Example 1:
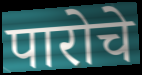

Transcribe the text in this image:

पारोचे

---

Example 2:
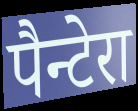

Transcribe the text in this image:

पैन्टेरा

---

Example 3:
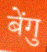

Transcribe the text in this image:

बेंगु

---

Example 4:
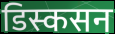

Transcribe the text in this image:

डिस्कसन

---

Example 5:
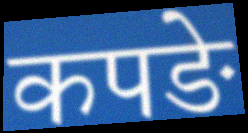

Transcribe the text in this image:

कपङे